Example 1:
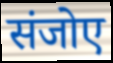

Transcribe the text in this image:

संजोए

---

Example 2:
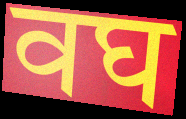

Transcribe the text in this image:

वघ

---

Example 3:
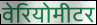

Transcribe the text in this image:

वेरियोमीटर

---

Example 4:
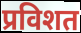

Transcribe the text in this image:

प्रविशत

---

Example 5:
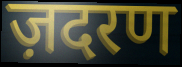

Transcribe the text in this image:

ज़दरण